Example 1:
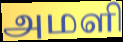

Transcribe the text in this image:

அமளி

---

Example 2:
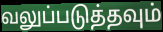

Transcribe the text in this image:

வலுப்படுத்தவும்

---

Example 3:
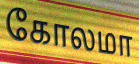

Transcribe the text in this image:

கோலமா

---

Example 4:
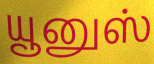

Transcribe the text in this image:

யூனுஸ்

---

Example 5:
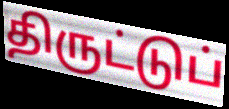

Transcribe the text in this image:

திருட்டுப்